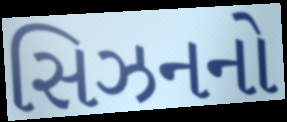
સિઝનનો